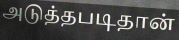
அடுத்தபடிதான்